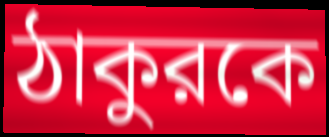
ঠাকুরকে